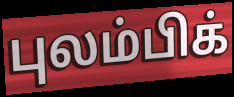
புலம்பிக்